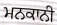
ਮਨਕਾਨੀ